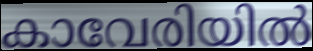
കാവേരിയിൽ